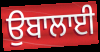
ਉਬਾਲਾਈ